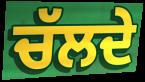
ਚੱਲਦੇ